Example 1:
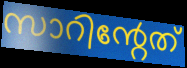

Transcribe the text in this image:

സാറിന്റേത്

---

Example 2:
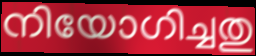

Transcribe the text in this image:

നിയോഗിച്ചതു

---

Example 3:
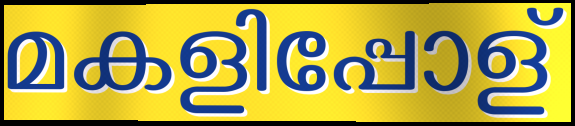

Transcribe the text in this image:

മകളിപ്പോള്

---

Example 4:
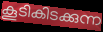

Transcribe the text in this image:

കൂടികിടക്കുന്ന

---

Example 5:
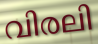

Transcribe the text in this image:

വിരലി